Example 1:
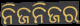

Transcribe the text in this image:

ନିଜନିଜର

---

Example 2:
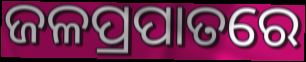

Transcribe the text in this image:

ଜଳପ୍ରପାତରେ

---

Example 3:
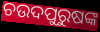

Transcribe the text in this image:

ଚଉଦପୁରୁଷଙ୍କ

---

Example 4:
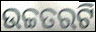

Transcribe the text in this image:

ଉଚ୍ଚତରଟି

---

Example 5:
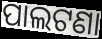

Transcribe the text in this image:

ପାଲଟଣା